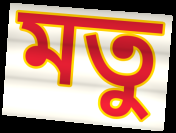
মতু